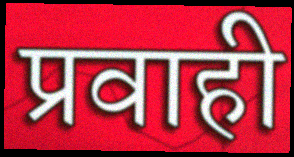
प्रवाही